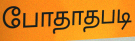
போதாதபடி